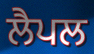
ਲੈਪਲ